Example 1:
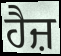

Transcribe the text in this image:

ਹੈਜ਼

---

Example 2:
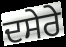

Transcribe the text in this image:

ਦਸੇਰੇ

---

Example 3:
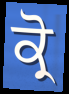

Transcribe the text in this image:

ਕ੍ਰੋ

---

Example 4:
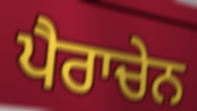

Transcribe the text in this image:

ਪੈਰਾਚੇਨ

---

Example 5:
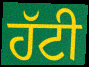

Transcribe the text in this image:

ਹੱਟੀ